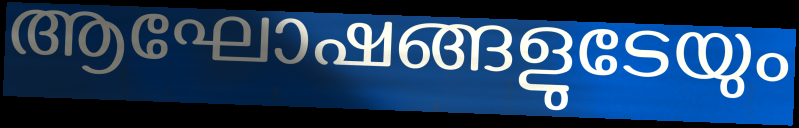
ആഘോഷങ്ങളുടേയും